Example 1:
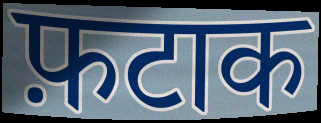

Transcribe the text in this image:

फ़टाक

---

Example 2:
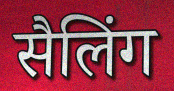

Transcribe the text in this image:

सैलिंग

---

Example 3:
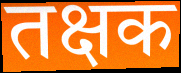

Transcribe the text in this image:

तक्षक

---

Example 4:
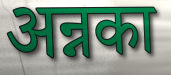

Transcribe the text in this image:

अन्नका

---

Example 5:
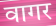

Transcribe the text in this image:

वागर